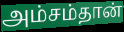
அம்சம்தான்